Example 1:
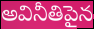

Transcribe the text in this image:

అవినీతిపైన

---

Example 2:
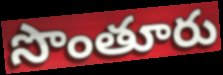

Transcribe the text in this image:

సొంతూరు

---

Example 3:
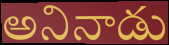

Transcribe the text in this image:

అనినాడు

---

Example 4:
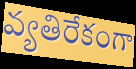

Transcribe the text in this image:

వ్యతిరేకంగా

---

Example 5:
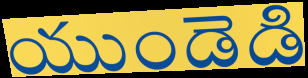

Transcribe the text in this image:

యుండెడి